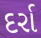
દર્રા